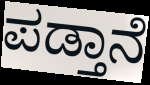
ಪಡ್ತಾನೆ